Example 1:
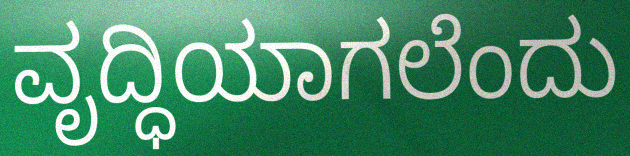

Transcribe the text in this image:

ವೃದ್ಧಿಯಾಗಲೆಂದು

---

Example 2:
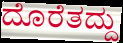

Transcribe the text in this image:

ದೊರೆತದ್ದು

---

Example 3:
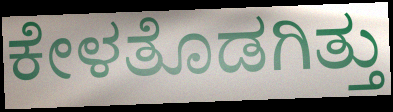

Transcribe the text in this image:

ಕೇಳತೊಡಗಿತ್ತು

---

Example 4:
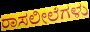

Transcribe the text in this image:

ರಾಸಲೀಲೆಗಳು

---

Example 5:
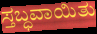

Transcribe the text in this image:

ಸ್ತಬ್ಧವಾಯಿತು